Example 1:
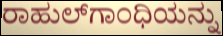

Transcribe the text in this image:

ರಾಹುಲ್‌ಗಾಂಧಿಯನ್ನು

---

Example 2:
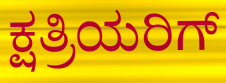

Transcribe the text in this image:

ಕ್ಷತ್ರಿಯರಿಗ್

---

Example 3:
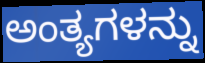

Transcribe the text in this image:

ಅಂತ್ಯಗಳನ್ನು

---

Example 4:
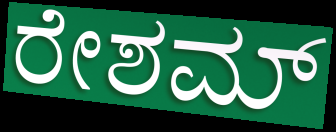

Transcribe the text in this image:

ರೇಶಮ್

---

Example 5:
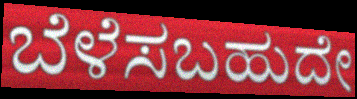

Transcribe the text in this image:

ಬೆಳೆಸಬಹುದೇ